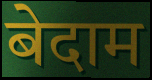
बेदाम